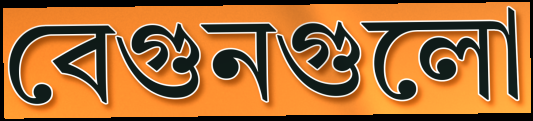
বেগুনগুলো